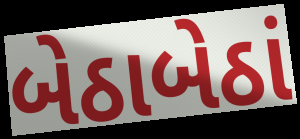
બેઠાબેઠાં